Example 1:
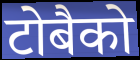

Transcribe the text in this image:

टोबैको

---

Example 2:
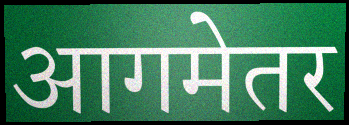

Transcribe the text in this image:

आगमेतर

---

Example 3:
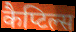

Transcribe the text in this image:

कैप्टिल्स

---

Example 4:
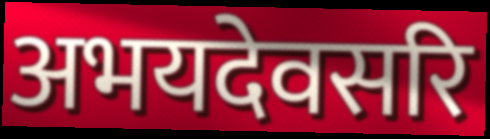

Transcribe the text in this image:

अभयदेवसरि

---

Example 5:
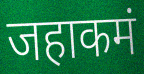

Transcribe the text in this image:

जहाकमं